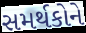
સમર્થકોને